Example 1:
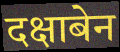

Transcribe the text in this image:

दक्षाबेन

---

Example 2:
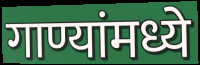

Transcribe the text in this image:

गाण्यांमध्ये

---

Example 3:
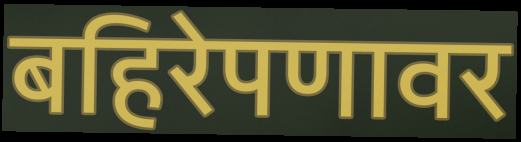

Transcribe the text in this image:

बहिरेपणावर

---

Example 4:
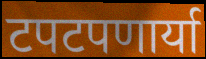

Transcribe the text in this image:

टपटपणार्या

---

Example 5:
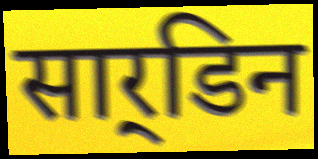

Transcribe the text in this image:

सार्डिन